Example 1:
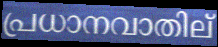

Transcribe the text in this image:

പ്രധാനവാതില്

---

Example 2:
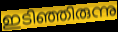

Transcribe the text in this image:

ഇടിഞ്ഞിരുന്നു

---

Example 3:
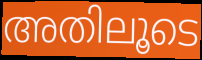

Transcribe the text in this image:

അതിലൂടെ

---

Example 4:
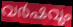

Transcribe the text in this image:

വർഷവും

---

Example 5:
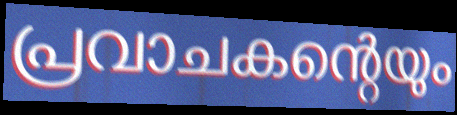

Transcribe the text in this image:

പ്രവാചകന്റെയും